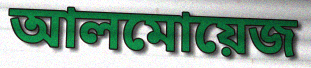
আলমোয়েজ